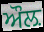
ਔਲ਼